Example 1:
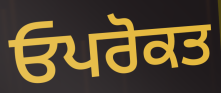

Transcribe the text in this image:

ਓਪਰੋਕਤ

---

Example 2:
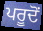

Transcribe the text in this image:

ਪਰੂਦੋਂ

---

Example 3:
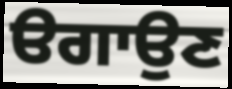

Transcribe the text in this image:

ੳਗਾਉਣ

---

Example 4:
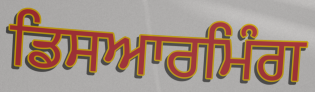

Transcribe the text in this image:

ਡਿਸਆਰਮਿੰਗ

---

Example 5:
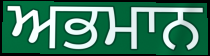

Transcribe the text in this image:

ਅਭਮਾਨ